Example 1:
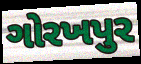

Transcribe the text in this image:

ગોરખપુર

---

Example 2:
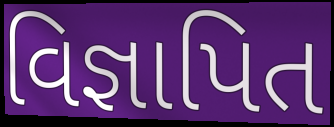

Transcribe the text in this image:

વિજ્ઞાપિત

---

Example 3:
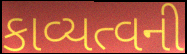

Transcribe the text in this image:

કાવ્યત્વની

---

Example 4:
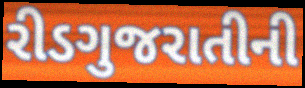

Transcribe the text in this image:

રીડગુજરાતીની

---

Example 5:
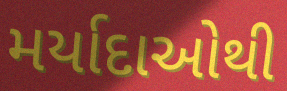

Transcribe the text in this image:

મર્યાદાઓથી